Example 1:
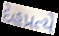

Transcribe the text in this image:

દેહપ્રત્યે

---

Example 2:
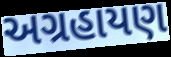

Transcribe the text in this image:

અગ્રહાયણ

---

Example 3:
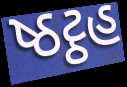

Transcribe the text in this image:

ષ્ઠટ્ઠહ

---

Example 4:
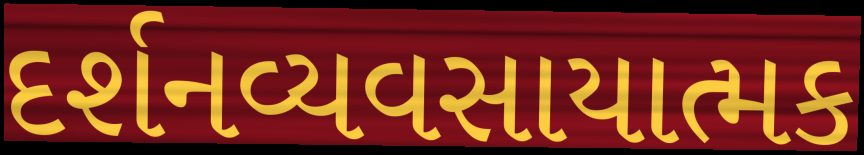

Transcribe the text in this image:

દર્શનવ્યવસાયાત્મક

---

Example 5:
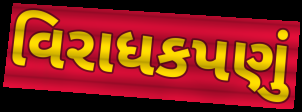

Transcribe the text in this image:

વિરાધકપણું